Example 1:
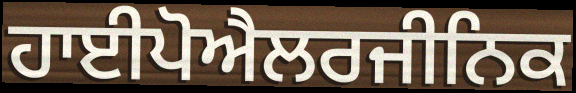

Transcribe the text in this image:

ਹਾਈਪੋਐਲਰਜੀਨਿਕ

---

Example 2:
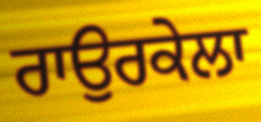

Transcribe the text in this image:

ਰਾਉਰਕੇਲਾ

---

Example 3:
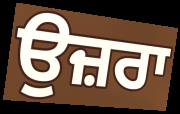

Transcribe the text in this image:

ਉਜ਼ਰਾ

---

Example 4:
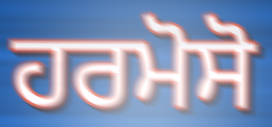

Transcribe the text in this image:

ਹਰਮੋਸੋ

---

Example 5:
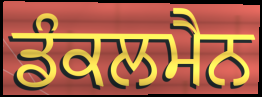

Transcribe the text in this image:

ਡੰਕਲਮੈਨ